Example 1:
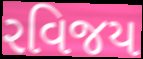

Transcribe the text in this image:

રવિજય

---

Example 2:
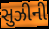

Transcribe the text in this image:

સુઝીની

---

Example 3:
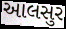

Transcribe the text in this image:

આલસુર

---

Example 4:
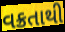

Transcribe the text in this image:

વક્રતાથી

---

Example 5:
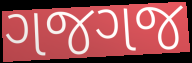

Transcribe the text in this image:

ગજગજ